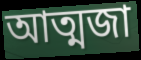
আত্মজা